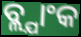
ବ୍ଲ୍ଯାଂକ